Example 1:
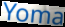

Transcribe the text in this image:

Yoma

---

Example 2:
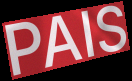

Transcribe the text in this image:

PAIS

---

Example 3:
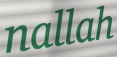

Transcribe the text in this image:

nallah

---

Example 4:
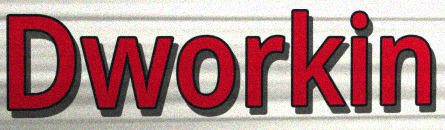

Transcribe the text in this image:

Dworkin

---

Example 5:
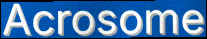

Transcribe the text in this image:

Acrosome